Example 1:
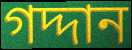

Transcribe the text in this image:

গদ্দান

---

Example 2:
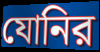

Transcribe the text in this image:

যোনির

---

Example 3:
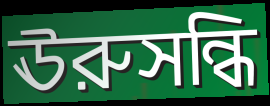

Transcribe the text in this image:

ঊরুসন্ধি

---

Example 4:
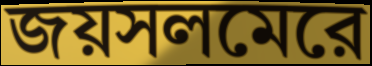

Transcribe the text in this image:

জয়সলমেরে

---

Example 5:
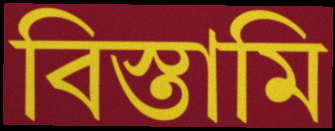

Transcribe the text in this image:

বিস্তামি